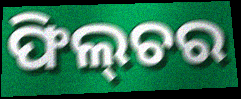
ଫିଲ୍‌ଚର